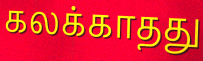
கலக்காதது